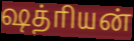
ஷத்ரியன்